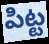
పిట్ట